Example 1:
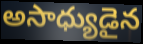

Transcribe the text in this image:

అసాధ్యుడైన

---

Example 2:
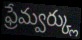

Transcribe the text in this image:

ఫ్రేమ్వర్క్లు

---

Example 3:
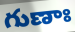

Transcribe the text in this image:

గుణాః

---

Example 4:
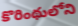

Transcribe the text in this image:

కొరింథులోని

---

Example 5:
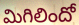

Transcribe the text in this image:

మిగిలిందో